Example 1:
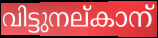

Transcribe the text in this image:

വിട്ടുനല്കാന്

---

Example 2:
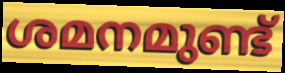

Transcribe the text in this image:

ശമനമുണ്ട്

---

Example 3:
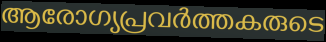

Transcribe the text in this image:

ആരോഗ്യപ്രവർത്തകരുടെ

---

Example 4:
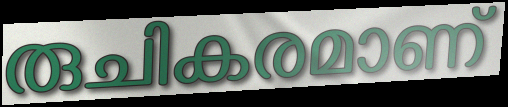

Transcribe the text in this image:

രുചികരമാണ്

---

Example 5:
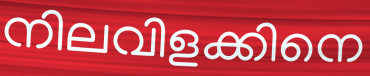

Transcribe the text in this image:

നിലവിളക്കിനെ